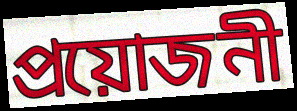
প্ৰয়োজনী